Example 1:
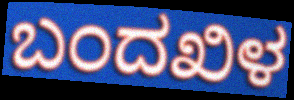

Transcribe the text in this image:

ಬಂದಖಿಳ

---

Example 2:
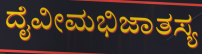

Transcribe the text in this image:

ದೈವೀಮಭಿಜಾತಸ್ಯ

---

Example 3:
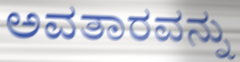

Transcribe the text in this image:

ಅವತಾರವನ್ನು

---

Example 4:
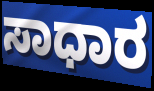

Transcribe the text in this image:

ಸಾಧಾರ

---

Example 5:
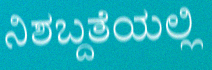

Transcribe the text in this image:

ನಿಶಬ್ದತೆಯಲ್ಲಿ